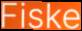
Fiske